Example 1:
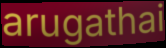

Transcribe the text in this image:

arugathai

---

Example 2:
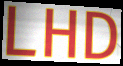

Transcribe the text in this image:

LHD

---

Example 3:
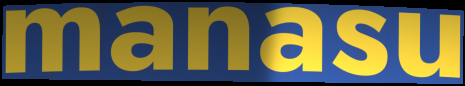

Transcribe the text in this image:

manasu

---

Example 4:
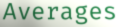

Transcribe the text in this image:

Averages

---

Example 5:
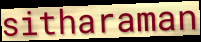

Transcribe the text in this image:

sitharaman